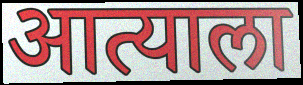
आत्याला